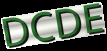
DCDE